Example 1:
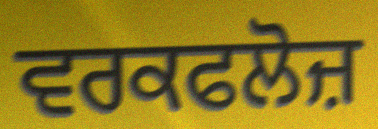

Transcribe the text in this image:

ਵਰਕਫਲੋਜ਼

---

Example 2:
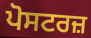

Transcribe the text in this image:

ਪੋਸਟਰਜ਼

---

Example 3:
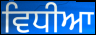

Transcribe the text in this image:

ਵਿਧੀਆ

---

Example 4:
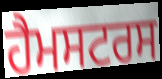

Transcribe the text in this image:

ਹੈਮਸਟਰਸ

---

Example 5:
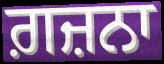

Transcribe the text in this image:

ਗ਼ਜ਼ਨਾ